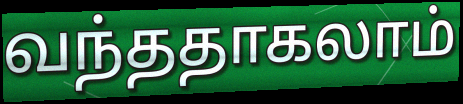
வந்ததாகலாம்